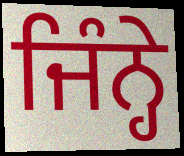
ਜਿੰਨ੍ਹੇ